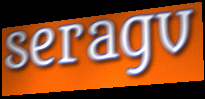
seragu